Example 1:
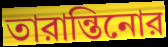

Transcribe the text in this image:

তারান্তিনোর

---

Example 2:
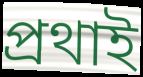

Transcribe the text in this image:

প্রথাই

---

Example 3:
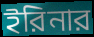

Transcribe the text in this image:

ইরিনার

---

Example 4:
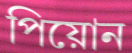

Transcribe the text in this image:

পিয়োন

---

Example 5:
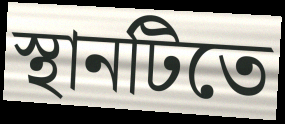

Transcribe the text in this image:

স্থানটিতে